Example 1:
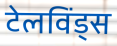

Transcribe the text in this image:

टेलविंड्स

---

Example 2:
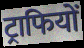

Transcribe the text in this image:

ट्राफियों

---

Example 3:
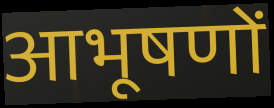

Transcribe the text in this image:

आभूषणों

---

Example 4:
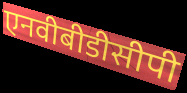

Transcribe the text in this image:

एनवीबीडीसीपी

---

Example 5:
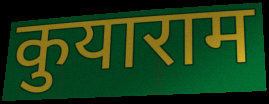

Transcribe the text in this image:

कुयाराम